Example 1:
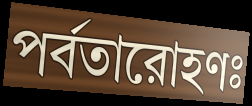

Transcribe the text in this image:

পর্বতারোহণঃ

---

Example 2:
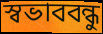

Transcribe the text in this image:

স্বভাববন্ধু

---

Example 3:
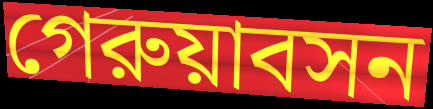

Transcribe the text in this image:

গেরুয়াবসন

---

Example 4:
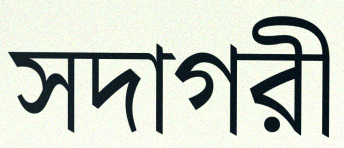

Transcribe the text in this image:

সদাগরী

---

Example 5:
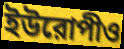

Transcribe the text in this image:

ইউরোপীও